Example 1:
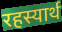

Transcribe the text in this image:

रहस्यार्थ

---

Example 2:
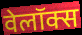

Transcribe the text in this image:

वेलॉक्स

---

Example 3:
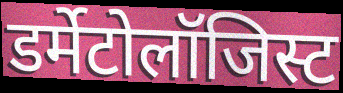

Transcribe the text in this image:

डर्मेटोलॉजिस्ट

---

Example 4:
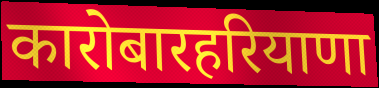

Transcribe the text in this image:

कारोबारहरियाणा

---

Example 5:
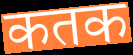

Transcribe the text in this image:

कतक